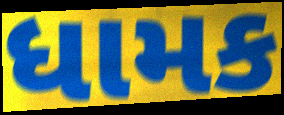
ધામક